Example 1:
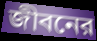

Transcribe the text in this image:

জীবনের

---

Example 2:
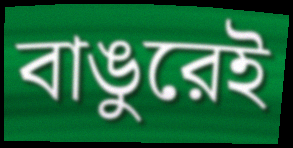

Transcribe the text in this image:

বাঙুরেই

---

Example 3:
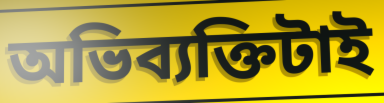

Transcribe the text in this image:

অভিব্যক্তিটাই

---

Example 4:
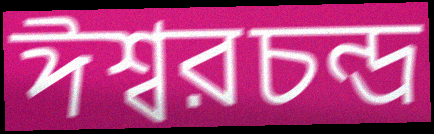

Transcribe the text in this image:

ঈশ্বরচন্দ্র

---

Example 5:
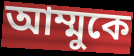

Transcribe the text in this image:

আম্মুকে